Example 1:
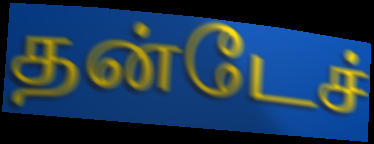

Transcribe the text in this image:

தன்டேச்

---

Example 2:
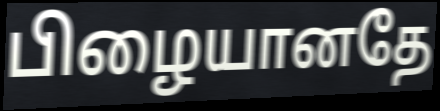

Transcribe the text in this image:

பிழையானதே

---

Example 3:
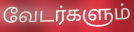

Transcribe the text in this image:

வேடர்களும்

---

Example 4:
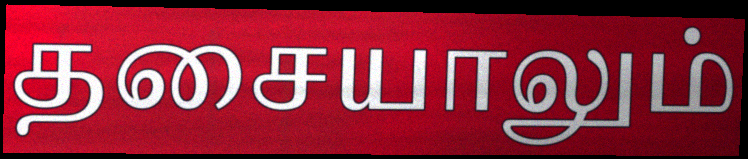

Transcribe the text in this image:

தசையாலும்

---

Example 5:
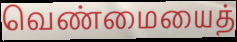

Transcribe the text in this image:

வெண்மையைத்